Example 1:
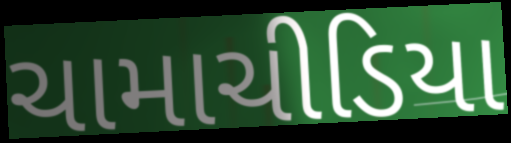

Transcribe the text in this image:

ચામાચીડિયા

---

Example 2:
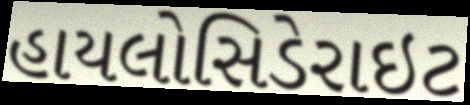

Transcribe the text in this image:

હાયલોસિડેરાઇટ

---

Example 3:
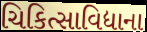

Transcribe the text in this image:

ચિકિત્સાવિદ્યાના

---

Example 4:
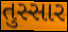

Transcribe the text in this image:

તુસ્સાર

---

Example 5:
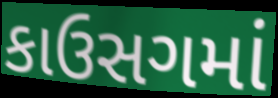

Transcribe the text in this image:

કાઉસગમાં